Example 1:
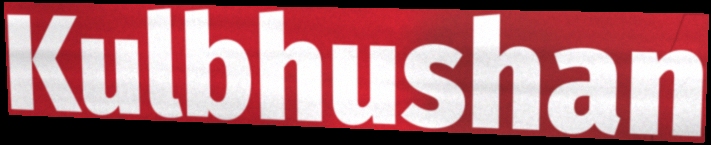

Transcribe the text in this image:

Kulbhushan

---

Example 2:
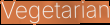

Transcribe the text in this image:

Vegetarian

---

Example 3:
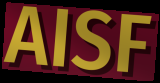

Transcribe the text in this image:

AISF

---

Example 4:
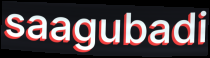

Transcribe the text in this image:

saagubadi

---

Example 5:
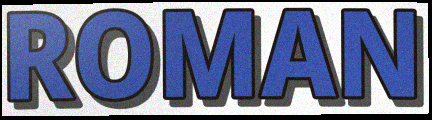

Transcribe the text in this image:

ROMAN